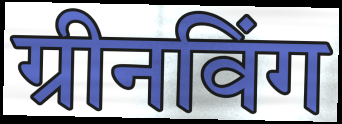
ग्रीनविंग